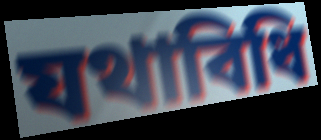
যথাবিধি